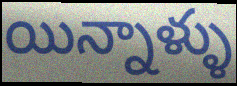
యిన్నాళ్ళు